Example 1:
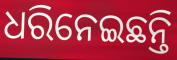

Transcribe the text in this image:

ଧରିନେଇଛନ୍ତି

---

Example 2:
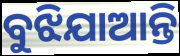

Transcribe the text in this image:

ବୁଝିଯାଆନ୍ତି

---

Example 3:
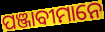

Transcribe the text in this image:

ପଞ୍ଜାବୀମାନେ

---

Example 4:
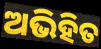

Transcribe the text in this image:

ଅଭିହିତ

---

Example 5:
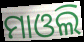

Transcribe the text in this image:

ମାଓଲି